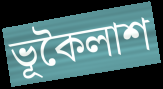
ভূকৈলাশ